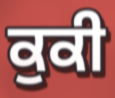
ਕੁਕੀ